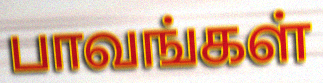
பாவங்கள்